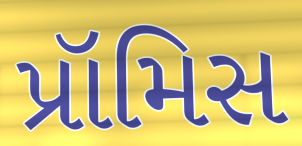
પ્રૉમિસ